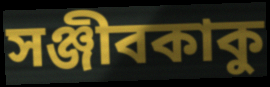
সঞ্জীবকাকু